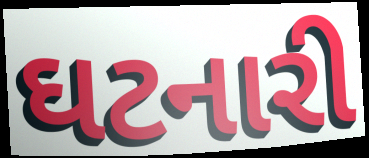
ઘટનારી